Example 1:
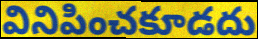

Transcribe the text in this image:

వినిపించకూడదు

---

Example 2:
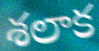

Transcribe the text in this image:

శలాక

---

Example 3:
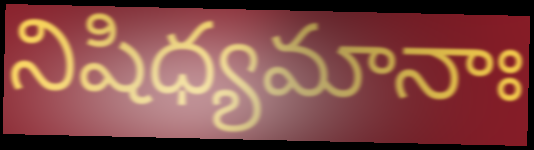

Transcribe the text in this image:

నిషిధ్యమానాః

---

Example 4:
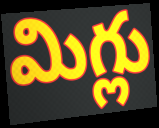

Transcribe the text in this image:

మిగ్లు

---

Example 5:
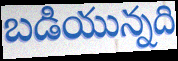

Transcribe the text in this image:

బడియున్నది